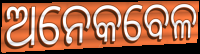
ଅନେକବେଳ